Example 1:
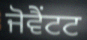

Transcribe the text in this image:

ਜੋਵੈਂਟਟ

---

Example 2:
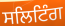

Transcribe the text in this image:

ਸਲਿਟਿੰਗ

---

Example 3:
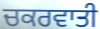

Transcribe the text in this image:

ਚਕਰਵਾਤੀ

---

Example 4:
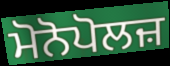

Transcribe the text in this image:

ਮੋਨੋਪੋਲਜ਼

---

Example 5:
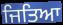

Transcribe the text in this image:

ਜਿਤਿਆ